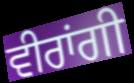
ਵੀਰਾਂਗੀ